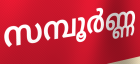
സമ്പൂർണ്ണ